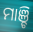
ମାଞ୍ଚି